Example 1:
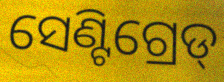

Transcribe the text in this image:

ସେଣ୍ଟିଗ୍ରେଡ୍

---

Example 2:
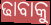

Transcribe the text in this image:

ଢାବାକୁ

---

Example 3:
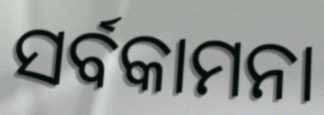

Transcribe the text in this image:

ସର୍ବକାମନା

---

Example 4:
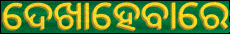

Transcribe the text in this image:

ଦେଖାହେବାରେ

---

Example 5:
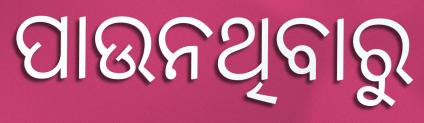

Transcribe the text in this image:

ପାଉନଥିବାରୁ